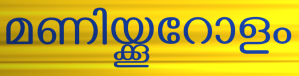
മണിയ്ക്കൂറോളം